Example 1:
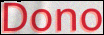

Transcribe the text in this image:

Dono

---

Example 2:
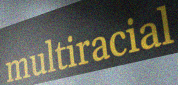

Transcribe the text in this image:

multiracial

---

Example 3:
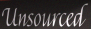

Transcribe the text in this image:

Unsourced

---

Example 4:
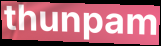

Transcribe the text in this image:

thunpam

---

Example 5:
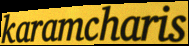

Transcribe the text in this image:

karamcharis